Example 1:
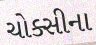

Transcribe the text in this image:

ચોક્સીના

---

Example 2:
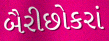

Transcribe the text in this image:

બૈરીછોકરાં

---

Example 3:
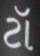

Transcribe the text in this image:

ટૉ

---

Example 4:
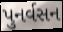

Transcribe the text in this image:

પુનર્વસન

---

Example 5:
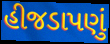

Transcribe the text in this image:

હીજડાપણું